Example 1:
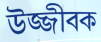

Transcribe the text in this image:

উজ্জীবক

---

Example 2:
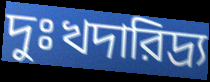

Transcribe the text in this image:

দুঃখদারিদ্র্য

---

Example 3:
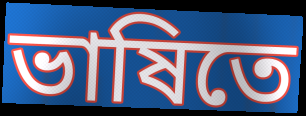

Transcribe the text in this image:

ভাষিতে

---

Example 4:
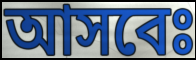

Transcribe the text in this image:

আসবেঃ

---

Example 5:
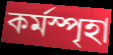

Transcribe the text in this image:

কর্মস্পৃহা